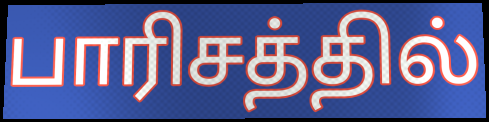
பாரிசத்தில்